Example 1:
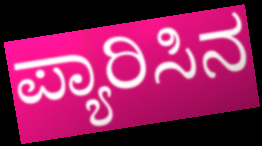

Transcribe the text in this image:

ಪ್ಯಾರಿಸಿನ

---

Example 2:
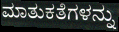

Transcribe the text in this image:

ಮಾತುಕತೆಗಳನ್ನು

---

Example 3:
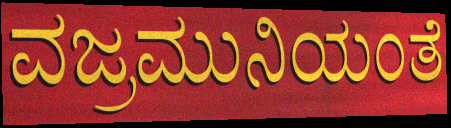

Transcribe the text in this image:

ವಜ್ರಮುನಿಯಂತೆ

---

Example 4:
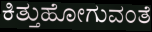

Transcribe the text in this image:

ಕಿತ್ತುಹೋಗುವಂತೆ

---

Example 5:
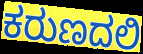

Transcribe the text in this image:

ಕರುಣದಲಿ